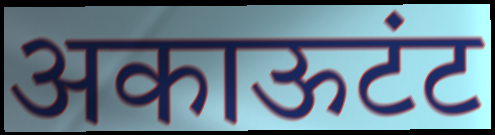
अकाऊटंट